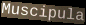
Muscipula